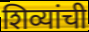
शिव्यांची